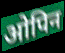
ओपिन